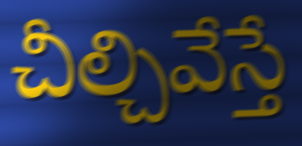
చీల్చివేస్తే